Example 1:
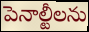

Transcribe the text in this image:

పెనాల్టీలను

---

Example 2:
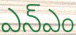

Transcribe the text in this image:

ఎన్ఎం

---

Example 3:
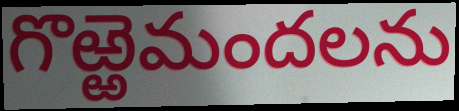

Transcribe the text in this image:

గొఱ్ఱెమందలను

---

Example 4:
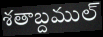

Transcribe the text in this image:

శతాబ్దముల్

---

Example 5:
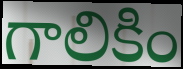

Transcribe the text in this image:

గాలికిం